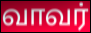
வாவர்